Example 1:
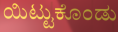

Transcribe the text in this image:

ಯಿಟ್ಟುಕೊಂಡು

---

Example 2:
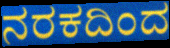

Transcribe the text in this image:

ನರಕದಿಂದ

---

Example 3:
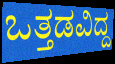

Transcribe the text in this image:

ಒತ್ತಡವಿದ್ದ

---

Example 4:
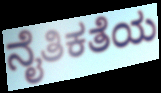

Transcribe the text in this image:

ನೈತಿಕತೆಯ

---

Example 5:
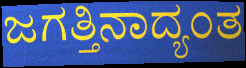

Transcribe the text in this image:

ಜಗತ್ತಿನಾದ್ಯಂತ